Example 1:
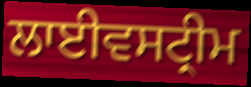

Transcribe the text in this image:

ਲਾਈਵਸਟ੍ਰੀਮ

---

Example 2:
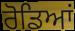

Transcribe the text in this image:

ਰੋਡਿਆਂ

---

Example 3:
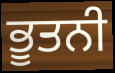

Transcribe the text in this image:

ਭੂਤਨੀ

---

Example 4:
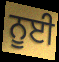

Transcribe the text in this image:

ਨੂਈ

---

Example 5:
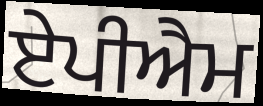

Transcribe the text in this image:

ਏਪੀਐਮ